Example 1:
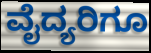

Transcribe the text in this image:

ವೈದ್ಯರಿಗೂ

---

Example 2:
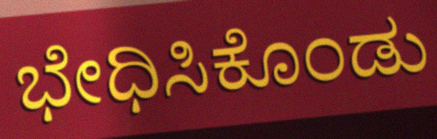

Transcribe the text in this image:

ಭೇಧಿಸಿಕೊಂಡು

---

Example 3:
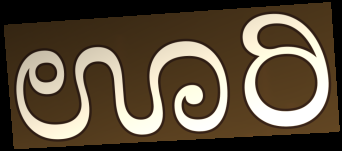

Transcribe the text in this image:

ಊರಿ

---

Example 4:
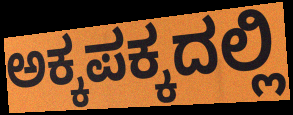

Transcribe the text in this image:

ಅಕ್ಕಪಕ್ಕದಲ್ಲಿ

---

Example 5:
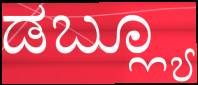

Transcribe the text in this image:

ಡಬ್ಲ್ಯೂ